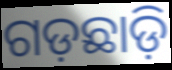
ଗଡ଼ଛାଡ଼ି